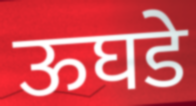
ऊघडे